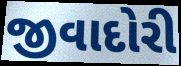
જીવાદોરી